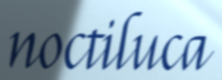
noctiluca